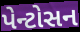
પેન્ટોસન